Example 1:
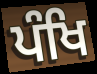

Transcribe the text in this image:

ਪੰਖਿ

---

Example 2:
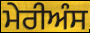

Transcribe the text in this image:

ਮੇਰੀਅੰਸ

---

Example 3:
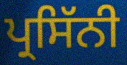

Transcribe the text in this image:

ਪ੍ਰਸਿੱਨੀ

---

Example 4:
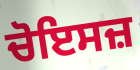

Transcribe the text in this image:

ਚੋਇਸਜ਼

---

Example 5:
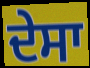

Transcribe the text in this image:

ਦੇਸਾ